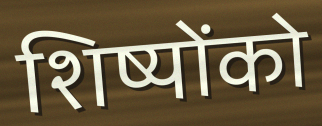
शिष्योंको